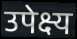
उपेक्ष्य